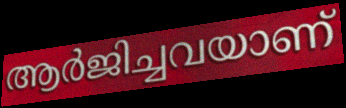
ആർജിച്ചവയാണ്